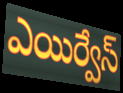
ఎయిర్వేస్